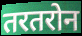
तरतरोन